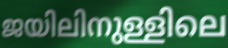
ജയിലിനുള്ളിലെ